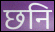
छनि